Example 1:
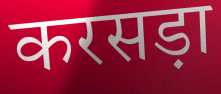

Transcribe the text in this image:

करसड़ा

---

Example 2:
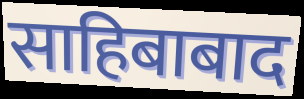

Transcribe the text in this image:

साहिबाबाद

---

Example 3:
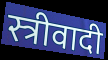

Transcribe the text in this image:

स्त्रीवादी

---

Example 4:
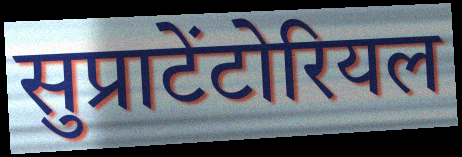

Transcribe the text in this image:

सुप्राटेंटोरियल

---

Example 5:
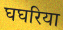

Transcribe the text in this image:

घघरिया